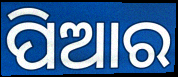
ପିଆର